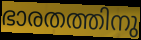
ഭാരതത്തിനു